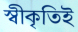
স্বীকৃতিই